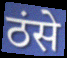
ठंसे